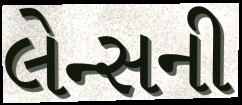
લેન્સની